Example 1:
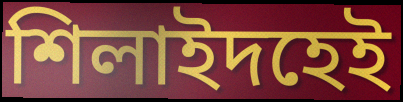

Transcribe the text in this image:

শিলাইদহেই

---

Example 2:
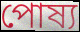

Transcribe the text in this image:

পোষ্য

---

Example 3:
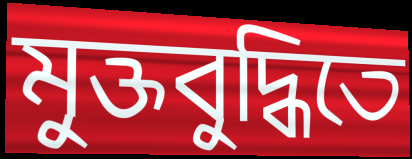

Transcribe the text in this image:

মুক্তবুদ্ধিতে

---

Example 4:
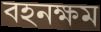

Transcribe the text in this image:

বহনক্ষম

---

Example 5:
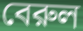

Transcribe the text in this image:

বেরুল